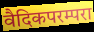
वैदिकपरम्परा